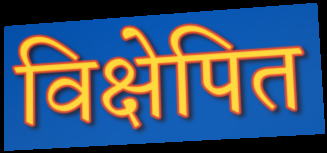
विक्षेपित